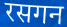
रसगन